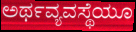
ಅರ್ಥವ್ಯವಸ್ಥೆಯೂ